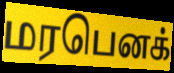
மரபெனக்